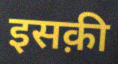
इसक़ी